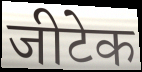
जीटेक